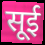
सूई